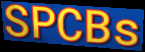
SPCBs